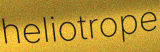
heliotrope